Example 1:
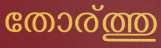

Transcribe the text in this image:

തോര്ത്തു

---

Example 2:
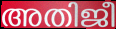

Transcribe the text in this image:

അതിജീ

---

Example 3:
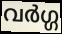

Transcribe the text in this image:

വർഗ്ഗ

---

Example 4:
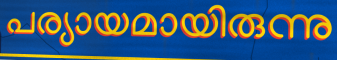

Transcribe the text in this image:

പര്യായമായിരുന്നു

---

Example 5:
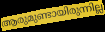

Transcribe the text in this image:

ആരുമുണ്ടായിരുന്നില്ല